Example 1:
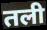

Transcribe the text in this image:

तली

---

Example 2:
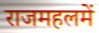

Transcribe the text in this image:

राजमहलमें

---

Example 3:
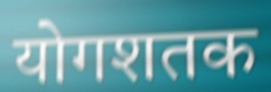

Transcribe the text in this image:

योगशतक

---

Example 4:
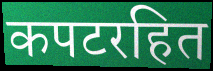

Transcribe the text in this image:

कपटरहित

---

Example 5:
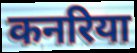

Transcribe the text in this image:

कनरिया